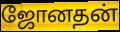
ஜோனதன்